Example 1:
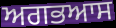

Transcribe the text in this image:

ਅਗਭਆਸ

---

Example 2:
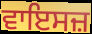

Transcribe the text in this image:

ਵਾਇਸਜ਼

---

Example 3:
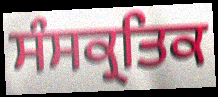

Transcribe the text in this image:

ਸੰਸਕ੍ਰਤਿਕ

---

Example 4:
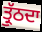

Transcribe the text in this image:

ਤ੍ਰੁੱਠਦਾ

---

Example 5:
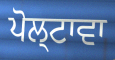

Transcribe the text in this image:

ਪੋਲ੍ਟਾਵਾ